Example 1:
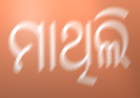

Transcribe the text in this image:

ମାଥିଲି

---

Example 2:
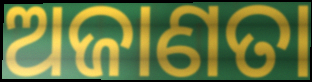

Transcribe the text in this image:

ଅଜାଣତା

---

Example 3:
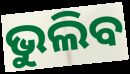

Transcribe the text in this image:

ଭୁଲିବ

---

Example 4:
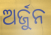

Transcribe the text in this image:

ଅର୍ଜୁନ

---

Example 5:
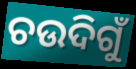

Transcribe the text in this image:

ଚଉଦିଗୁଁ